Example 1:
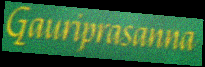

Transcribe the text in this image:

Gauriprasanna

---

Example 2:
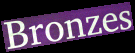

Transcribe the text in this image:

Bronzes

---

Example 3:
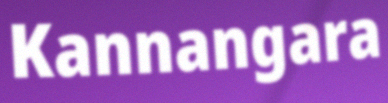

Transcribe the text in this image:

Kannangara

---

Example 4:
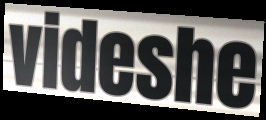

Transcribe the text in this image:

videshe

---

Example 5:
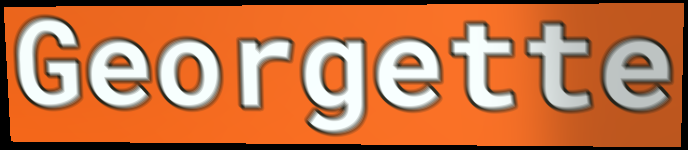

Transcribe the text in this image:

Georgette